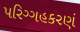
પરિગ્ગહકરણં